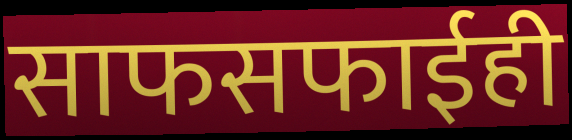
साफसफाईही